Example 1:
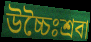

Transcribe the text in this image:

উচ্চৈঃশ্রবা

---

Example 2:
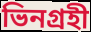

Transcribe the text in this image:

ভিনগ্রহী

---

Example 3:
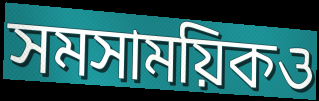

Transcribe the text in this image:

সমসাময়িকও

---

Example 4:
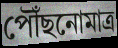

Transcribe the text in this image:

পৌঁছনোমাত্র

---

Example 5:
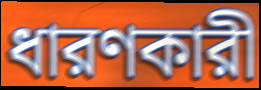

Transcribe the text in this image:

ধারণকারী